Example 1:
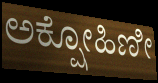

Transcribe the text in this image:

ಅಕ್ಷೋಹಿಣೀ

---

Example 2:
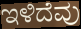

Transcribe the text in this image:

ಇಳಿದೆವು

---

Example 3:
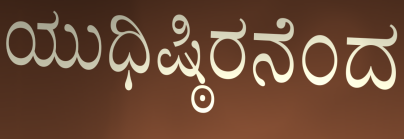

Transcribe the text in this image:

ಯುಧಿಷ್ಠಿರನೆಂದ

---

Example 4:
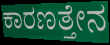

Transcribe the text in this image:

ಕಾರಣತ್ತೇನ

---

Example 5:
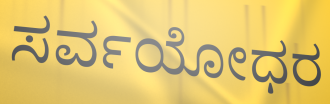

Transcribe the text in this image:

ಸರ್ವಯೋಧರ